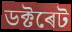
ডক্টৰেট